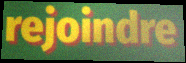
rejoindre